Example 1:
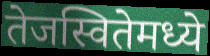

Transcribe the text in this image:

तेजस्वितेमध्ये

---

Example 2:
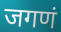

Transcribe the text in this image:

जगणं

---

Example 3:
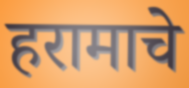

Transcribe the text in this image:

हरामाचे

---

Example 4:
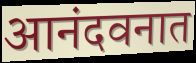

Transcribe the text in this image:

आनंदवनात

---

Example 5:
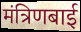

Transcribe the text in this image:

मंत्रिणबाई